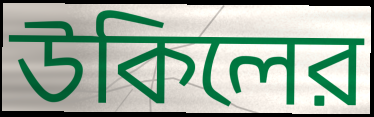
উকিলের